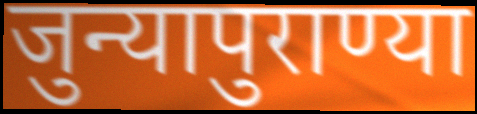
जुन्यापुराण्या